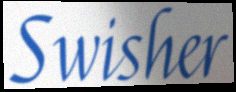
Swisher